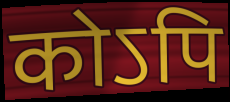
कोऽपि